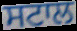
ਸਟਾਲ